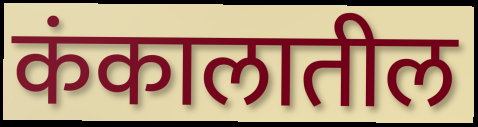
कंकालातील